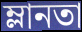
ম্লানতা